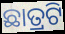
ଛାତ୍ରଟି